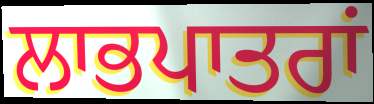
ਲਾਭਪਾਤਰਾਂ